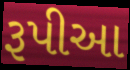
રૂપીઆ